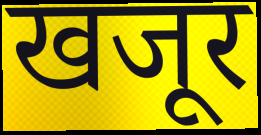
खजूर